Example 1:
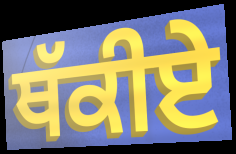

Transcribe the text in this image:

ਥੱਕੀਏ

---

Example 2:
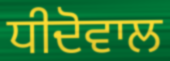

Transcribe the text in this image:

ਧੀਦੋਵਾਲ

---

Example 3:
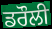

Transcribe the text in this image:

ਡਰੌਲੀ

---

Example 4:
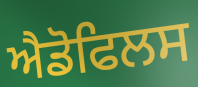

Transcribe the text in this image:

ਐਡੋਫਿਲਸ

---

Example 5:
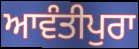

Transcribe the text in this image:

ਆਵੰਤੀਪੁਰਾ